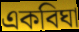
একবিঘা